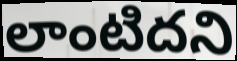
లాంటిదని